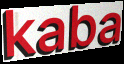
kaba